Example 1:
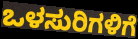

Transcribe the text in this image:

ಒಳಸುರಿಗಳಿಗೆ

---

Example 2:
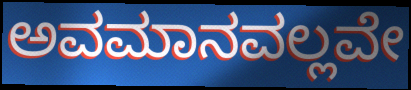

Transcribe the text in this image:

ಅವಮಾನವಲ್ಲವೇ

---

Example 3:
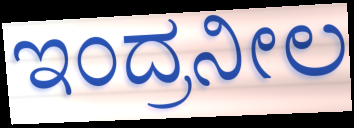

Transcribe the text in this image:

ಇಂದ್ರನೀಲ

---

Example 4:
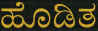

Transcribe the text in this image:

ಹೊಡಿತ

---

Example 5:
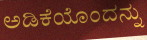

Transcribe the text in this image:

ಅಡಿಕೆಯೊಂದನ್ನು